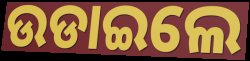
ଉଡାଇଲେ